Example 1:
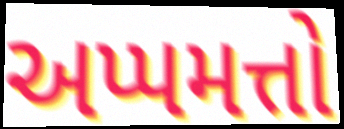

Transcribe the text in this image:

અપ્પમત્તો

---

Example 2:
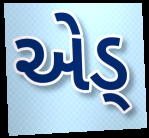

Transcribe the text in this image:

એડ્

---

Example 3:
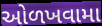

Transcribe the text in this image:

ઓળખવામા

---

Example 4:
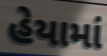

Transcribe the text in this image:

હેયામાં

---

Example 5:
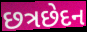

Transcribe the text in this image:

છત્રછેદન